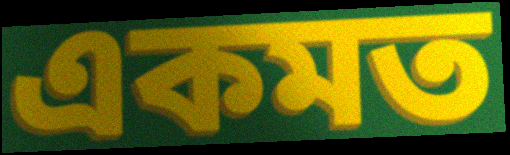
একমত